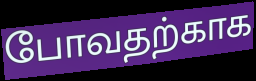
போவதற்காக